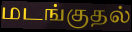
மடங்குதல்